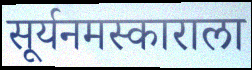
सूर्यनमस्काराला